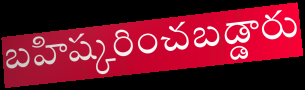
బహిష్కరించబడ్డారు